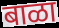
बाळा